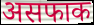
असफाक